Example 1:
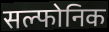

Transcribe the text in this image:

सल्फोनिक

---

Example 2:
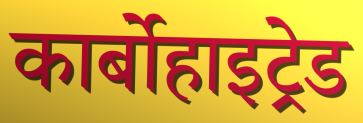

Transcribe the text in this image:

कार्बोहाइट्रेड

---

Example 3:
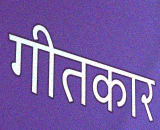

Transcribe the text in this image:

गीतकार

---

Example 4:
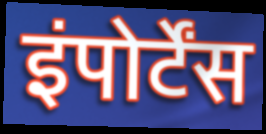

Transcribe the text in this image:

इंपोर्टेंस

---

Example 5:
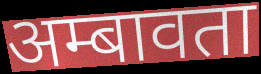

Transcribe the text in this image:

अम्बावता